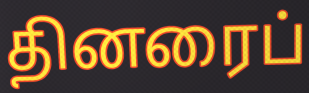
தினரைப்